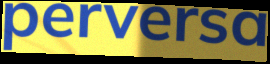
perversa